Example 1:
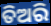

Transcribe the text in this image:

ତିଅରି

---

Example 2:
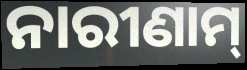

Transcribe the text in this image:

ନାରୀଣାମ୍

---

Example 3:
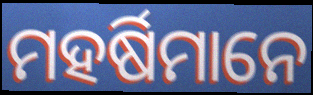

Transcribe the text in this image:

ମହର୍ଷିମାନେ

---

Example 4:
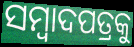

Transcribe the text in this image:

ସମ୍ବାଦପତ୍ରକୁ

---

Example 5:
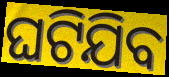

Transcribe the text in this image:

ଘଟିଯିବ